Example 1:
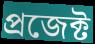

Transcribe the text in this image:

প্রজেক্ট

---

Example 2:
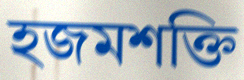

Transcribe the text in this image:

হজমশক্তি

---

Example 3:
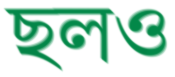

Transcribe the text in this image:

ছলও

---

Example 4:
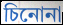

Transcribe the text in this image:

চিনোনা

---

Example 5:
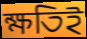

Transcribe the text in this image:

ক্ষতিই